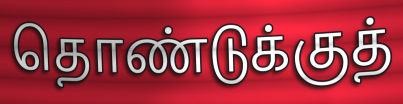
தொண்டுக்குத்